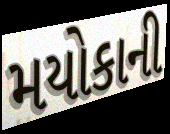
મયોકાની